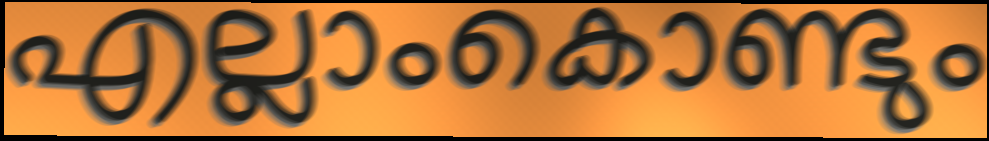
എല്ലാംകൊണ്ടും